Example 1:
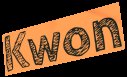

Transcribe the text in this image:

Kwon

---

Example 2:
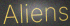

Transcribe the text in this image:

Aliens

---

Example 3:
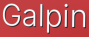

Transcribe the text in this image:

Galpin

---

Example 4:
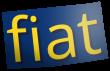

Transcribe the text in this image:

fiat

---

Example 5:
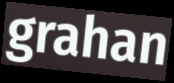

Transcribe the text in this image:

grahan